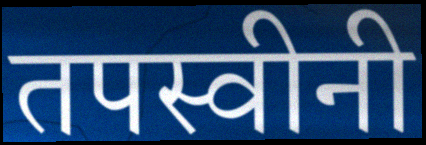
तपस्वीनी